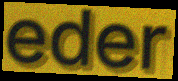
eder